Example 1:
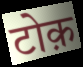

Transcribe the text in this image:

टोक़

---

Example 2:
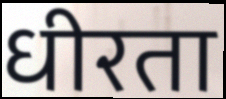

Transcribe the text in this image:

धीरता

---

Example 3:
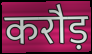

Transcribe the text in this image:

करौड़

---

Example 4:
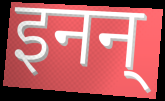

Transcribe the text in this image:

इनन्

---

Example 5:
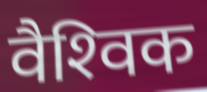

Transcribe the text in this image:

वैश्‍विक